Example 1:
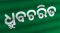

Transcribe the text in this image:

ଧ୍ରୁବଚରିତ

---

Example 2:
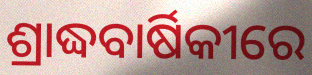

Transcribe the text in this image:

ଶ୍ରାଦ୍ଧବାର୍ଷିକୀରେ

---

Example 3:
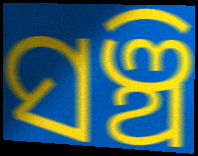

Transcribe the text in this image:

ସଞ୍ଚି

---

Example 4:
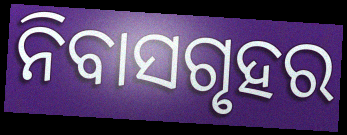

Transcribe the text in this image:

ନିବାସଗୃହର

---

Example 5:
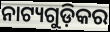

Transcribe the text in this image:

ନାଟ୍ୟଗୁଡ଼ିକର